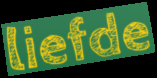
liefde